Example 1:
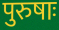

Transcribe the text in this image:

पुरुषाः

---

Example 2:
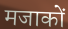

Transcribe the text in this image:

मजाकों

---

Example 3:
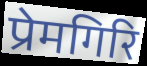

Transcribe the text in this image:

प्रेमगिरि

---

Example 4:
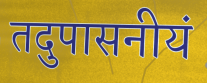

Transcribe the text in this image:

तदुपासनीयं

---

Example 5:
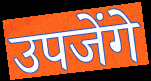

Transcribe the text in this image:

उपजेंगे